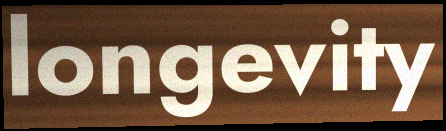
longevity